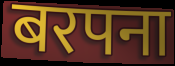
बरपना